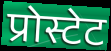
प्रोस्टेट